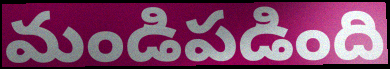
మండిపడింది